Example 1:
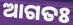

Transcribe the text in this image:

ଆଗତଃ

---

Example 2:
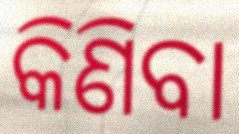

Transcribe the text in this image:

କିଣିବା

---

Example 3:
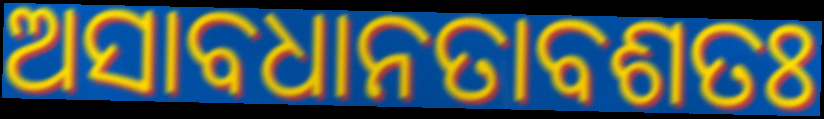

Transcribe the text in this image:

ଅସାବଧାନତାବଶତଃ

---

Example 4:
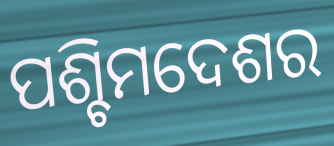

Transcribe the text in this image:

ପଶ୍ଚିମଦେଶର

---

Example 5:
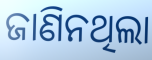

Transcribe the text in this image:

ଜାଣିନଥିଲା